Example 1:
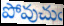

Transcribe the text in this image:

పోవుచుఁ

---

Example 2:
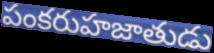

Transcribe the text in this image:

పంకరుహజాతుడు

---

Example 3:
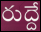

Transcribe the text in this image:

రుద్దే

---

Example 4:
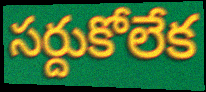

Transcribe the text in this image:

సర్దుకోలేక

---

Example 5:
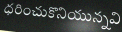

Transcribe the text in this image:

ధరించుకొనియున్నవి